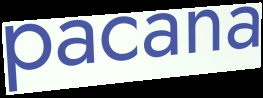
pacana